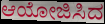
ಆಯೋಜಿಸಿದ